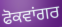
ਫੋਕਵਾਂਗਰ